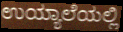
ಉಯ್ಯಾಲೆಯಲ್ಲಿ